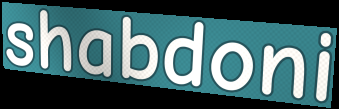
shabdoni